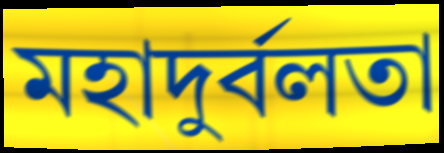
মহাদুর্বলতা